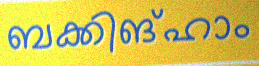
ബക്കിങ്ഹാം